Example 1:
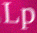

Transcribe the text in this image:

Lp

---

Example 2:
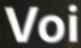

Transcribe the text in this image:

Voi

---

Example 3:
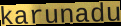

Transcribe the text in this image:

karunadu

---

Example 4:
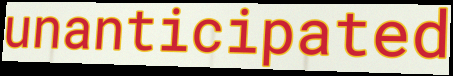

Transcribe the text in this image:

unanticipated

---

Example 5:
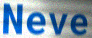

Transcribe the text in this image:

Neve